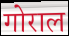
गोराल